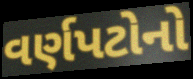
વર્ણપટોનો